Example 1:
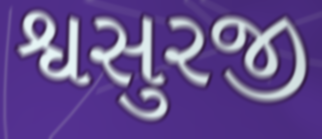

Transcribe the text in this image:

શ્વસુરજી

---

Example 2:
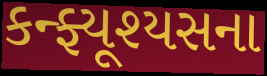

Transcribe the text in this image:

કન્ફ્યૂશ્યસના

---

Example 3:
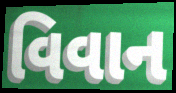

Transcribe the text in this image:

વિવાન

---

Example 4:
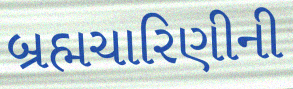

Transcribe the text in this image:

બ્રહ્મચારિણીની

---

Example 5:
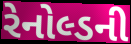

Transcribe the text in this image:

રેનોલ્ડની